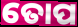
ତୋପ